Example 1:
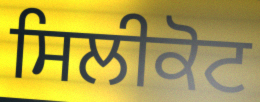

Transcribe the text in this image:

ਸਿਲੀਕੋਟ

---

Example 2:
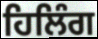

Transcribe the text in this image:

ਹਿਲਿੰਗ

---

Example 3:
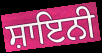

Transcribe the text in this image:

ਸ਼ਾਇਨੀ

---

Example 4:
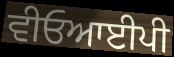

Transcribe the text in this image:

ਵੀਓਆਈਪੀ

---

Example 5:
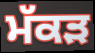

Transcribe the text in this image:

ਮੱਕੜ